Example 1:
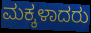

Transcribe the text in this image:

ಮಕ್ಕಳಾದರು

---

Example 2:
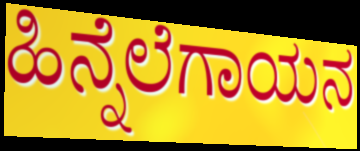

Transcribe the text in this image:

ಹಿನ್ನೆಲೆಗಾಯನ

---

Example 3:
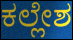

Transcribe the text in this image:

ಕಲ್ಲೇಶ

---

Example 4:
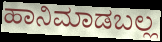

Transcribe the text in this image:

ಹಾನಿಮಾಡಬಲ್ಲ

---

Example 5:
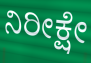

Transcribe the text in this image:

ನಿರೀಕ್ಷೇ